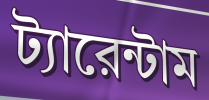
ট্যারেন্টাম